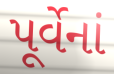
પૂર્વેનાં